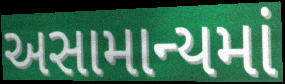
અસામાન્યમાં